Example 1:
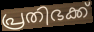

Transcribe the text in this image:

പ്രതിഭക്ക്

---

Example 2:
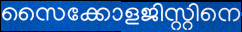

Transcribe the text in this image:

സൈക്കോളജിസ്റ്റിനെ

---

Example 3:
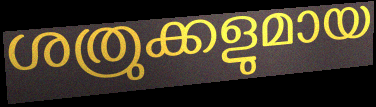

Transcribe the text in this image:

ശത്രുക്കളുമായ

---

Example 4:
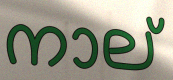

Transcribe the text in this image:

നാല്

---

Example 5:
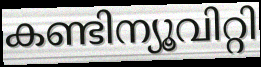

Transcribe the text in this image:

കണ്ടിന്യൂവിറ്റി